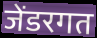
जेंडरगत